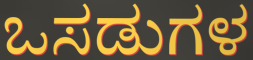
ಒಸಡುಗಳ